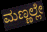
ಮಣ್ಣಲ್ಲೇ